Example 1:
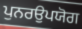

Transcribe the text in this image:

ਪੁਨਰਉਪਯੋਗ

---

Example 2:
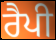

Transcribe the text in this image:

ਰੈਪੀ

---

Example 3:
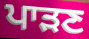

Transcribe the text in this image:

ਪਾੜਣ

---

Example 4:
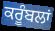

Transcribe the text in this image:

ਕਰੂੰਬਲਾਂ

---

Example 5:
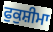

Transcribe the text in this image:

ਫੁਕੁਸ਼ੀਮਾ